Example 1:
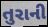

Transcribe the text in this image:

તુરાની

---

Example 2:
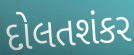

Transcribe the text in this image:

દોલતશંકર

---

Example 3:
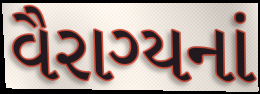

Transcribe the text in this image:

વૈરાગ્યનાં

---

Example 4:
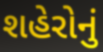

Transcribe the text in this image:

શહેરોનું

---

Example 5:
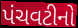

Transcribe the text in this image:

પંચવટીનો